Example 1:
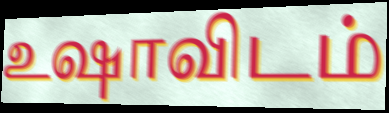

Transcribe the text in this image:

உஷாவிடம்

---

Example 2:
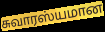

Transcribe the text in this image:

சுவாரஸ்யமான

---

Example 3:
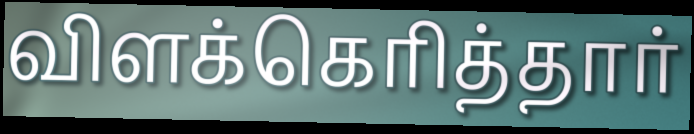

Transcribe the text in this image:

விளக்கெரித்தார்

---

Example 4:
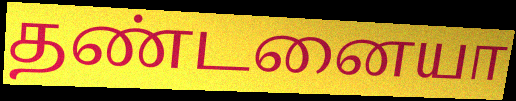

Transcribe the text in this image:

தண்டனையா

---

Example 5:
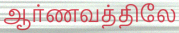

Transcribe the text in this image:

ஆர்ணவத்திலே